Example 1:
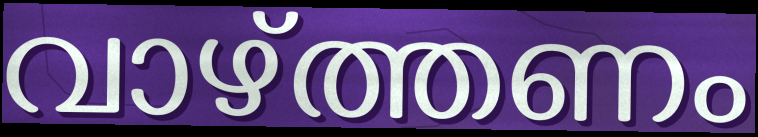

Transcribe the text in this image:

വാഴ്ത്തണം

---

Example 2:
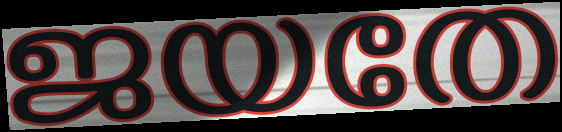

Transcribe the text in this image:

ജയതേ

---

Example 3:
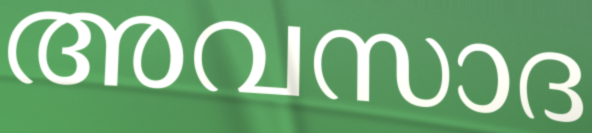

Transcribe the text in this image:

അവസാദ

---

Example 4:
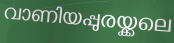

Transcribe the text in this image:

വാണിയപ്പുരയ്ക്കലെ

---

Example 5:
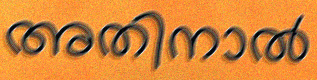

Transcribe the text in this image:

അതിനാൽ